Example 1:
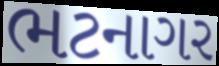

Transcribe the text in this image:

ભટનાગર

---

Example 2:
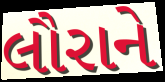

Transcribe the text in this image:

લૌરાને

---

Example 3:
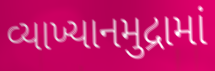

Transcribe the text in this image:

વ્યાખ્યાનમુદ્રામાં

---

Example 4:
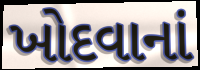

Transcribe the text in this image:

ખોદવાનાં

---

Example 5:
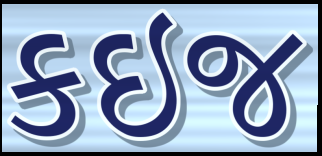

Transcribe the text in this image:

કઇજ